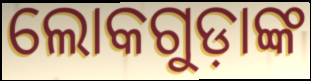
ଲୋକଗୁଡ଼ାଙ୍କ